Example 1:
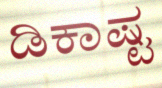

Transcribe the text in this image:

ಡಿಕಾಷ್ಟ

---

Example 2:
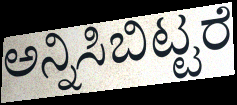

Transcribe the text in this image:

ಅನ್ನಿಸಿಬಿಟ್ಟರೆ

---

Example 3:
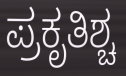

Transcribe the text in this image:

ಪ್ರಕೃತಿಶ್ಚ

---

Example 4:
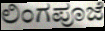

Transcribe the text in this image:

ಲಿಂಗಪೂಜೆ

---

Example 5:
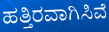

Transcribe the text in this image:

ಹತ್ತಿರವಾಗಿಸಿವೆ